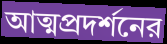
আত্মপ্রদর্শনের